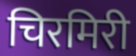
चिरमिरी